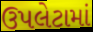
ઉપલેટામાં